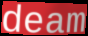
deam